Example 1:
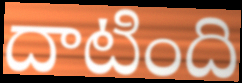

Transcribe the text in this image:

దాటింది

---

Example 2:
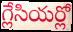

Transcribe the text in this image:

గ్లేసియర్లో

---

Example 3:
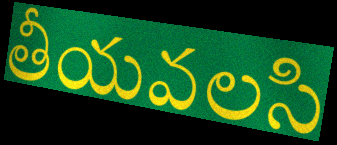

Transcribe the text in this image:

తీయవలసి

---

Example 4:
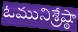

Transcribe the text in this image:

ఓమునిశ్రేష్ఠా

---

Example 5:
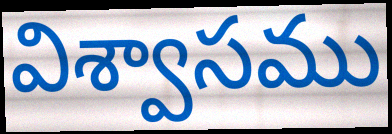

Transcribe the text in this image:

విశ్వాసము